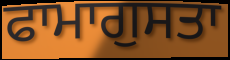
ਫਾਮਾਗੁਸਤਾ